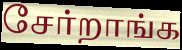
சேர்றாங்க